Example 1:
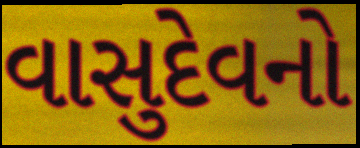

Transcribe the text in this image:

વાસુદેવનો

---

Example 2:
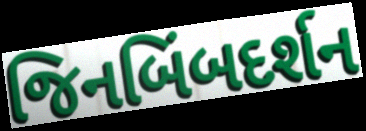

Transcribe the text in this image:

જિનબિંબદર્શન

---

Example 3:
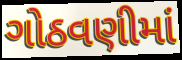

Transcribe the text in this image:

ગોઠવણીમાં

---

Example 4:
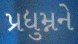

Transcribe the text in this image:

પ્રદ્યુમ્નને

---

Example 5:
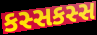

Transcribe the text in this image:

કસ્સકસ્સ